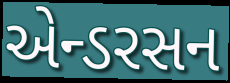
એન્ડરસન